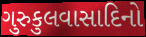
ગુરુકુલવાસાદિનો